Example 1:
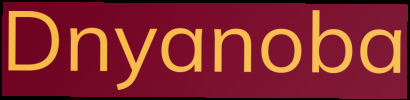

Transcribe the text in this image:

Dnyanoba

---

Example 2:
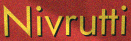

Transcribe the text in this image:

Nivrutti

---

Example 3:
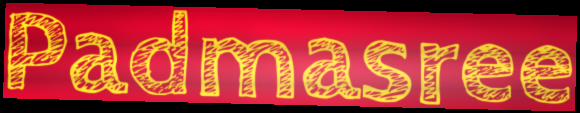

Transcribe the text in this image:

Padmasree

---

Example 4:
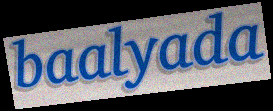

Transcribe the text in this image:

baalyada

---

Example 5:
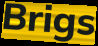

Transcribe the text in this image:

Brigs